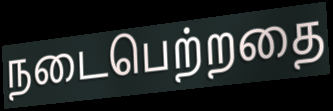
நடைபெற்றதை